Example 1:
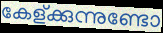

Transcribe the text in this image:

കേള്ക്കുന്നുണ്ടോ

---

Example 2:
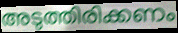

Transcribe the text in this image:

അടുത്തിരിക്കണം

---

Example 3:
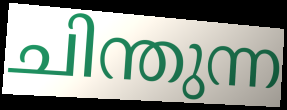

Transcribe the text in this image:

ചിന്തുന്ന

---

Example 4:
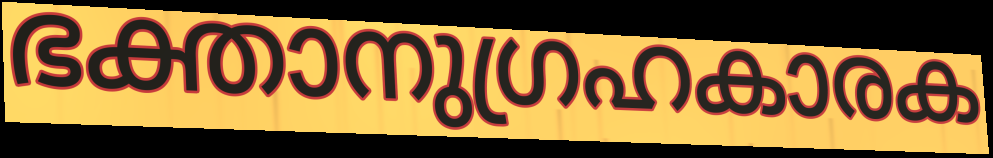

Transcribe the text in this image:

ഭക്താനുഗ്രഹകാരക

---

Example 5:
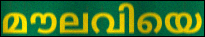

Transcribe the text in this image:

മൗലവിയെ